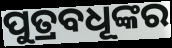
ପୁତ୍ରବଧୂଙ୍କର